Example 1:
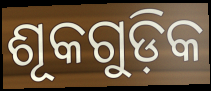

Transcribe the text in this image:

ଶୂକଗୁଡ଼ିକ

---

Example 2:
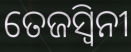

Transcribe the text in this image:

ତେଜସ୍ଵିନୀ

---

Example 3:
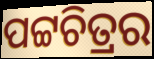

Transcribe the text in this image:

ପଟ୍ଟଚିତ୍ରର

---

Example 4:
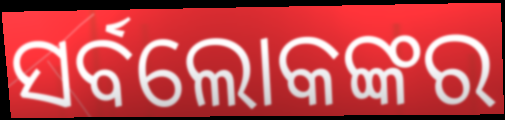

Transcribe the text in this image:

ସର୍ବଲୋକଙ୍କର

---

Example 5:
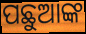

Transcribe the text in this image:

ପଛୁଆଙ୍କ